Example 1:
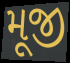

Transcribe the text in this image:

મૂજી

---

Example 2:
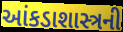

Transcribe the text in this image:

આંકડાશાસ્ત્રની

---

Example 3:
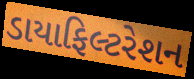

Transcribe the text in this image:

ડાયાફિલ્ટરેશન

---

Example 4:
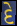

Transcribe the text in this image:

દે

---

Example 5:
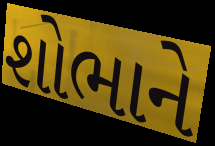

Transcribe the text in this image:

શોભાને